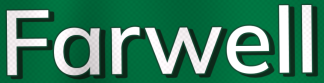
Farwell